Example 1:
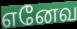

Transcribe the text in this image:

எனேவ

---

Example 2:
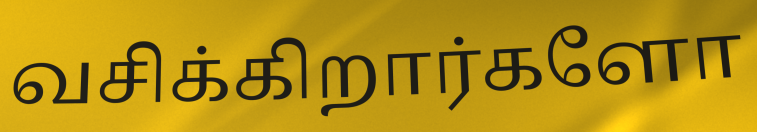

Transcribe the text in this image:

வசிக்கிறார்களோ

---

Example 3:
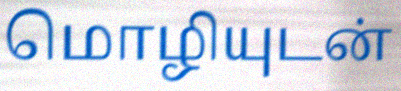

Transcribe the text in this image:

மொழியுடன்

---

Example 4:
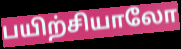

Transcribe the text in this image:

பயிற்சியாலோ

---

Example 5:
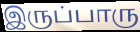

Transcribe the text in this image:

இருப்பாரு